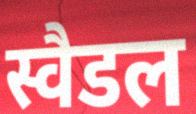
स्वैडल